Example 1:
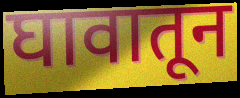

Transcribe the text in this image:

घावातून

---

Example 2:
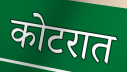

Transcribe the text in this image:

कोटरात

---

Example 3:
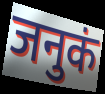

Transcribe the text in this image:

जनुकं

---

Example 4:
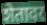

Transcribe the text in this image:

शेतावर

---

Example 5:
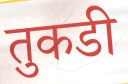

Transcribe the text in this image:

तुकडी